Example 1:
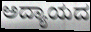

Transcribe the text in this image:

ಅದ್ಯಾಯದ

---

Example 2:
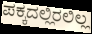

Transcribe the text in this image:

ಪಕ್ಕದಲ್ಲಿರಲಿಲ್ಲ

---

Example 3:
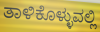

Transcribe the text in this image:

ತಾಳಿಕೊಳ್ಳುವಲ್ಲಿ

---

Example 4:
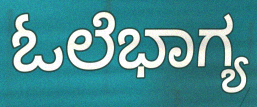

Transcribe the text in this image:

ಓಲೆಭಾಗ್ಯ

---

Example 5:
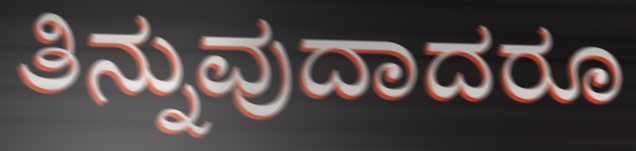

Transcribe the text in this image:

ತಿನ್ನುವುದಾದರೂ